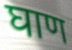
घाण